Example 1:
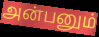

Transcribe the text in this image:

அன்பனும்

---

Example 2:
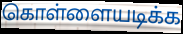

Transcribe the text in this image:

கொள்ளையடிக்க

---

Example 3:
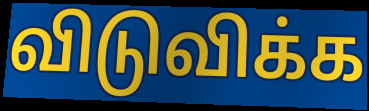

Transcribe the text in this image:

விடுவிக்க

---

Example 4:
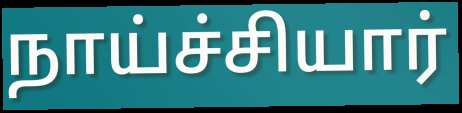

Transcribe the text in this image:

நாய்ச்சியார்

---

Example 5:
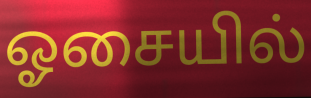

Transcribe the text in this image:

ஓசையில்